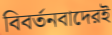
বিবর্তনবাদেরই